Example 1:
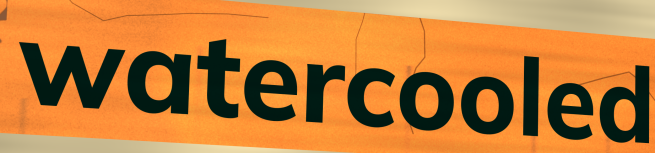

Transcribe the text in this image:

watercooled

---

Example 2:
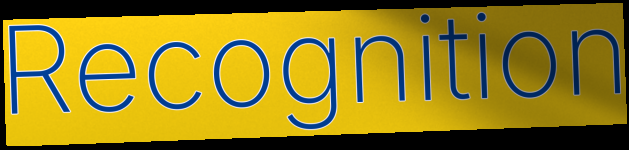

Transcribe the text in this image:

Recognition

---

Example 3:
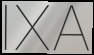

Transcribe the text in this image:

IXA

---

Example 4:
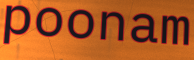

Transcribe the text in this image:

poonam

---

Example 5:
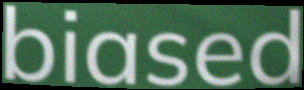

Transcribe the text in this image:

biased